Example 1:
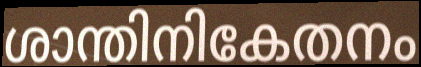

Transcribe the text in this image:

ശാന്തിനികേതനം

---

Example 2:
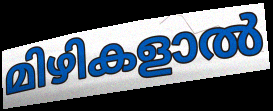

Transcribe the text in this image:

മിഴികളാൽ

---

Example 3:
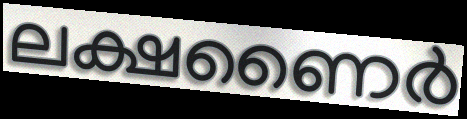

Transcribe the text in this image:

ലക്ഷണൈർ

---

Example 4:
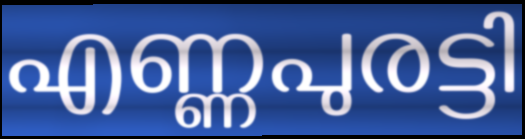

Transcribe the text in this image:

എണ്ണപുരട്ടി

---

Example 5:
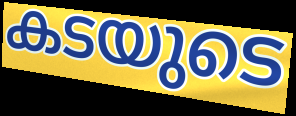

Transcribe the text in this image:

കടയുടെ